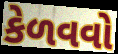
કેળવવો